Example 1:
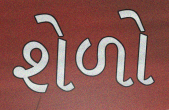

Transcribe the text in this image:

શેળો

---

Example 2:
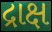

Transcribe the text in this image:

દ્રાક્ષ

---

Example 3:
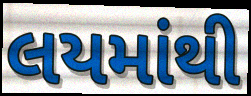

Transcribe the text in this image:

લયમાંથી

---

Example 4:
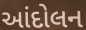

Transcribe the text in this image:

આંદોલન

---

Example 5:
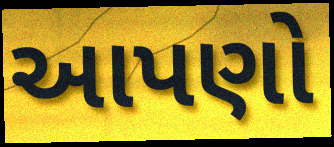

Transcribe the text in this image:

આપણો